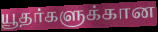
யூதர்களுக்கான